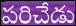
పరిచేడు